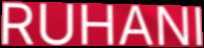
RUHANI